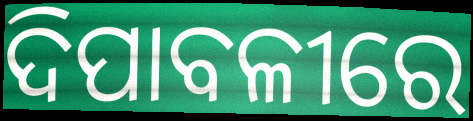
ଦିପାବଳୀରେ